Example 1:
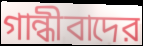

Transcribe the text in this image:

গান্ধীবাদের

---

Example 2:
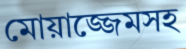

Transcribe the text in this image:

মোয়াজ্জেমসহ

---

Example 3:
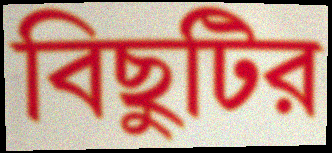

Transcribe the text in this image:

বিছুটির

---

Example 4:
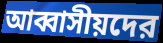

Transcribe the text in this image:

আব্বাসীয়দের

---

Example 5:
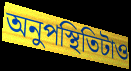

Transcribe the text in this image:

অনুপস্থিতিটাও